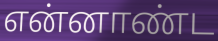
என்னாண்ட